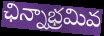
ఛిన్నాభ్రమివ